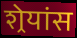
श्रेयांस